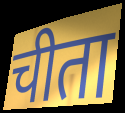
चीता